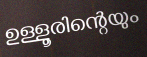
ഉള്ളൂരിന്റെയും